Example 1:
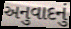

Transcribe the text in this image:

અનુવાદનું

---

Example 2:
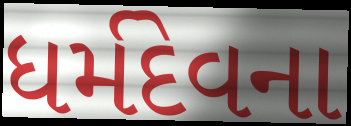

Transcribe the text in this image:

ધર્મદેવના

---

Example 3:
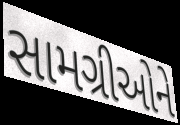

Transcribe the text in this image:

સામગ્રીઓને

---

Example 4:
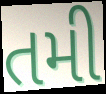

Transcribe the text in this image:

તમી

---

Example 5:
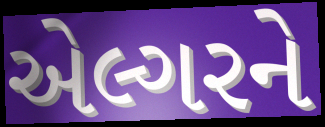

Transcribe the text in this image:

એલ્ગરને